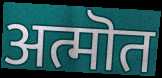
अत्मॊत